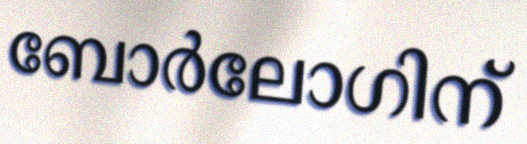
ബോർലോഗിന്